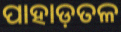
ପାହାଡ଼ତଳ